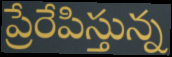
ప్రేరేపిస్తున్న